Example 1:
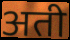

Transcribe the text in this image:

अती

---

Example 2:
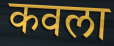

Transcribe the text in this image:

कवला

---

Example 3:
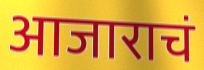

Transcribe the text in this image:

आजाराचं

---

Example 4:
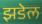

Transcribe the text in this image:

झडेल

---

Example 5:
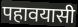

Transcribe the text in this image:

पहावयासी